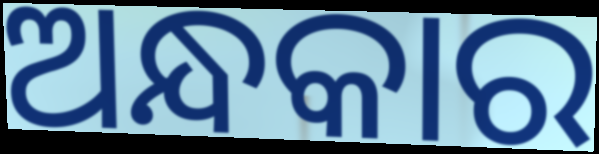
ଅନ୍ଧକାର